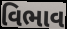
વિભાવ